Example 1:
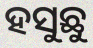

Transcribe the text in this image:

ହସୁଛୁ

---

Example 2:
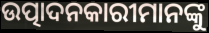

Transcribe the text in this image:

ଉତ୍ପାଦନକାରୀମାନଙ୍କୁ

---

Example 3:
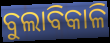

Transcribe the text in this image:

ବୁଲାବିକାଳି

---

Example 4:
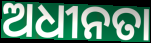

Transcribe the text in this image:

ଅଧୀନତା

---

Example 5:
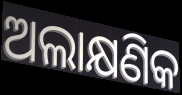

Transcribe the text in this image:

ଅଲାକ୍ଷଣିକ